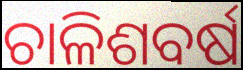
ଚାଳିଶବର୍ଷ